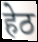
हेठ